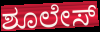
ಶೂಲೇಸ್